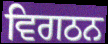
ਵਿਗਠਨ